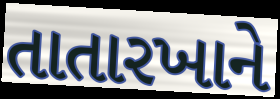
તાતારખાને